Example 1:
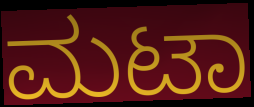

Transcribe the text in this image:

ಮಟಾ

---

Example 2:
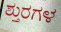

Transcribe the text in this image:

ಶ್ತುರಗಳ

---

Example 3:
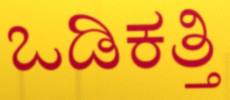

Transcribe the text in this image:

ಒಡಿಕತ್ತಿ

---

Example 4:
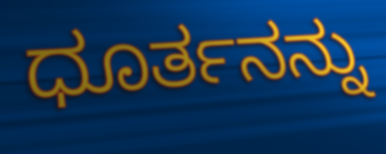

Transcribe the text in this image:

ಧೂರ್ತನನ್ನು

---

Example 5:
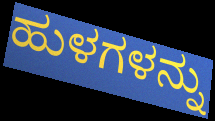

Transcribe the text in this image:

ಹುಳಗಳನ್ನು